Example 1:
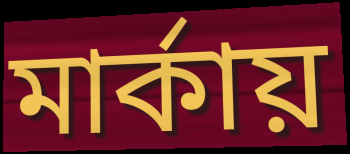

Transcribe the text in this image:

মার্কায়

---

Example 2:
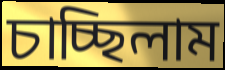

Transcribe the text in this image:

চাচ্ছিলাম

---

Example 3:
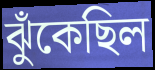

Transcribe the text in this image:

ঝুঁকেছিল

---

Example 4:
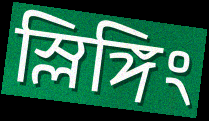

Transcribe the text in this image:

স্লিঙ্গিং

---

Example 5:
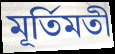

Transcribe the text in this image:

মূর্তিমতী